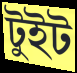
টুইট